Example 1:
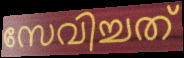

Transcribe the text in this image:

സേവിച്ചത്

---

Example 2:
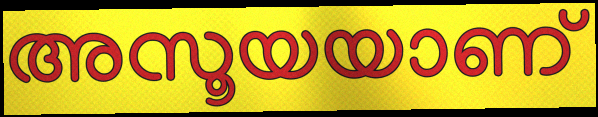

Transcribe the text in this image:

അസൂയയാണ്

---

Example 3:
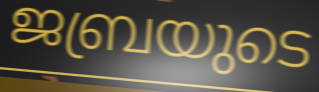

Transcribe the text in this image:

ജബ്രയുടെ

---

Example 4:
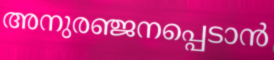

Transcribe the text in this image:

അനുരഞ്ജനപ്പെടാൻ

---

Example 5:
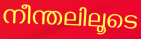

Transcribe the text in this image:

നീന്തലിലൂടെ